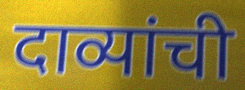
दाव्यांची